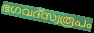
ഭഗവദ്സ്വരൂപം